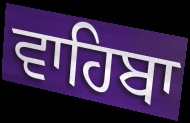
ਵਾਹਿਬਾ